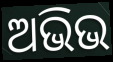
ଅଭିଭ